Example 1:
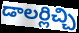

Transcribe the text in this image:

డాలర్లిచ్చి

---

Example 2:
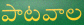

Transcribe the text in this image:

పాటవాల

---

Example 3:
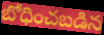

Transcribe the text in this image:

బోధించబడిన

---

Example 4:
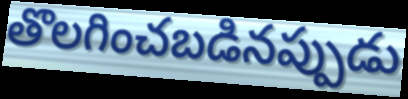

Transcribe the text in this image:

తొలగించబడినప్పుడు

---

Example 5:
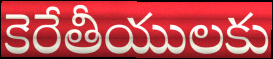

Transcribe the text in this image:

కెరేతీయులకు